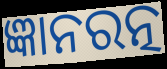
ଜ୍ଞାନରତ୍ନ